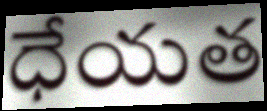
ధేయత